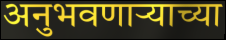
अनुभवणार्‍याच्या